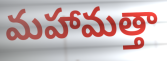
మహామత్తా